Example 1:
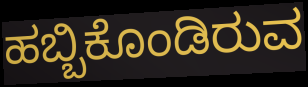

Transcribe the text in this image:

ಹಬ್ಬಿಕೊಂಡಿರುವ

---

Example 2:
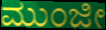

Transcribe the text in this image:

ಮುಂಜೀ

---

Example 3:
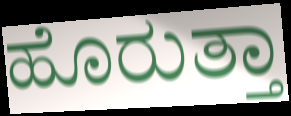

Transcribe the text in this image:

ಹೊರುತ್ತಾ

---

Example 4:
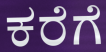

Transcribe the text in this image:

ಕರೆಗೆ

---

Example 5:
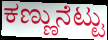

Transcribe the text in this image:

ಕಣ್ಣುನೆಟ್ಟು